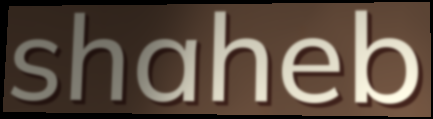
shaheb